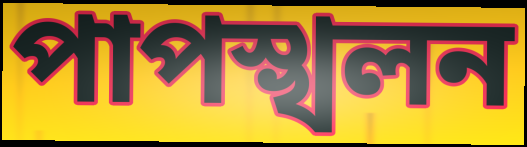
পাপস্খলন